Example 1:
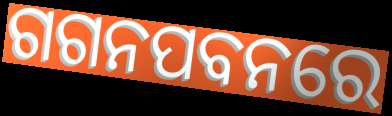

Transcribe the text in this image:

ଗଗନପବନରେ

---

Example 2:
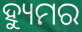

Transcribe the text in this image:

ହ୍ୟୁମର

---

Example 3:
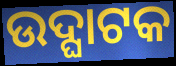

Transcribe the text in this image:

ଉଦ୍ଘାଟକ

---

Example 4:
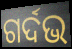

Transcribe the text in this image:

ଗର୍ଦଭ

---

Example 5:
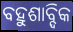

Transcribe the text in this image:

ବହୁଶାବ୍ଦିକ